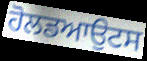
ਹੋਲਡਆਉਟਸ